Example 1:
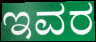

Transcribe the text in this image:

ಇವರ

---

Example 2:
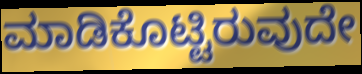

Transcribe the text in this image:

ಮಾಡಿಕೊಟ್ಟಿರುವುದೇ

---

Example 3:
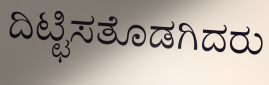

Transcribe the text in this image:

ದಿಟ್ಟಿಸತೊಡಗಿದರು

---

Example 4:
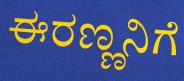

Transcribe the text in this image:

ಈರಣ್ಣನಿಗೆ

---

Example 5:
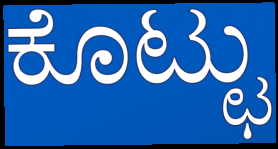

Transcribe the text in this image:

ಕೊಟ್ಟು